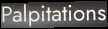
Palpitations